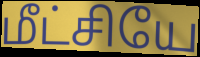
மீட்சியே